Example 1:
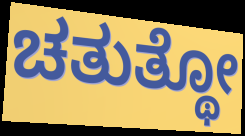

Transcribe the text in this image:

ಚತುತ್ಥೋ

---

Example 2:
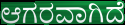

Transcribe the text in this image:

ಆಗರವಾಗಿದೆ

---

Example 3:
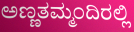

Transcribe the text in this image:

ಅಣ್ಣತಮ್ಮಂದಿರಲ್ಲಿ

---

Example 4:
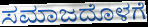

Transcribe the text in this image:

ಸಮಾಜದೊಳಗೆ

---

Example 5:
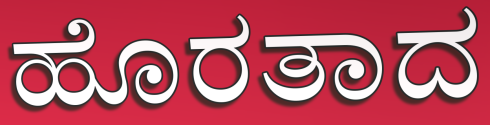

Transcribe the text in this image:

ಹೊರತಾದ